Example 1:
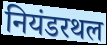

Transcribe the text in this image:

नियंडरथल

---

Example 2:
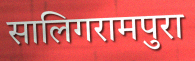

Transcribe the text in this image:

सालिगरामपुरा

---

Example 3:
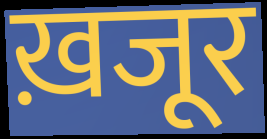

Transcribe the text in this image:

ख़जूर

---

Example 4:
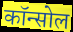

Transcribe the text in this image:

कॉन्सोल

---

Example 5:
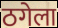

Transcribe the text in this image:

ठगेला